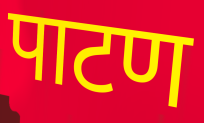
पाटण